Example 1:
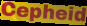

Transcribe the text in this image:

Cepheid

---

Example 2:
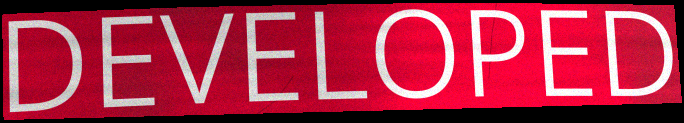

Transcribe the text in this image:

DEVELOPED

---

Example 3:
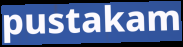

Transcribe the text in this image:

pustakam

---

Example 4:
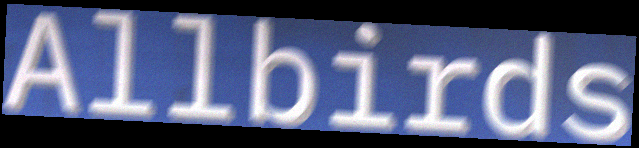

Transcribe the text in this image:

Allbirds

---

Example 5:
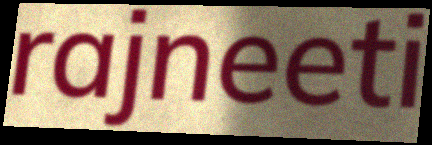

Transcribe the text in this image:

rajneeti